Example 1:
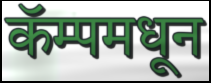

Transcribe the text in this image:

कॅम्पमधून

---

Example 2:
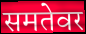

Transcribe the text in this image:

समतेवर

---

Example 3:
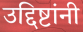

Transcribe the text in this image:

उद्दिष्टांनी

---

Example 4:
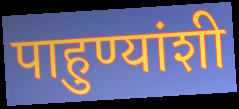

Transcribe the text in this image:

पाहुण्यांशी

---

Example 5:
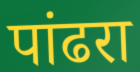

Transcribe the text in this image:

पांढरा